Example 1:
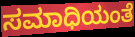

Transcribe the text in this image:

ಸಮಾಧಿಯಂತೆ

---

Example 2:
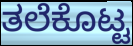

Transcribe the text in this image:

ತಲೆಕೊಟ್ಟ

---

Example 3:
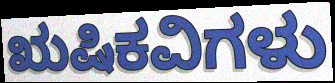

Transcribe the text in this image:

ಋಷಿಕವಿಗಳು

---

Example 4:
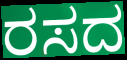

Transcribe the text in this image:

ರಸದ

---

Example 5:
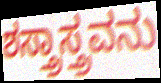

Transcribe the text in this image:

ಶಸ್ತ್ರಾಸ್ತ್ರವನು